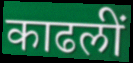
काढलीं